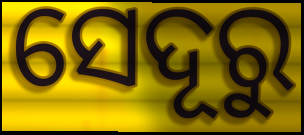
ସେଦୂରୁ